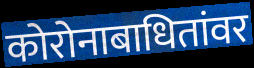
कोरोनाबाधितांवर